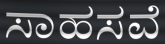
ಸಾಹಸವೆ